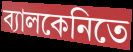
ব্যালকেনিতে